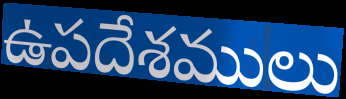
ఉపదేశములు